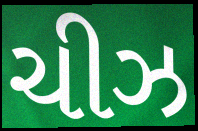
ચીઝ